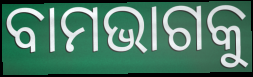
ବାମଭାଗକୁ